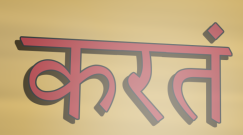
करतं